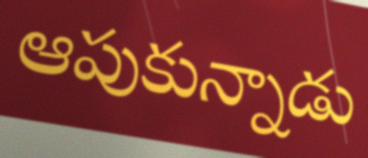
ఆపుకున్నాడు